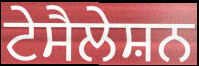
ਟੇਸੈਲੇਸ਼ਨ